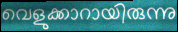
വെളുക്കാറായിരുന്നു